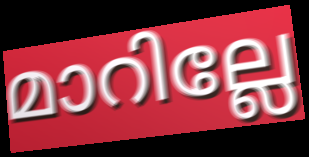
മാറില്ലേ